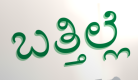
ಬತ್ತಿಲ್ಲೆ